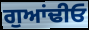
ਗੁਆਂਢੀਓ